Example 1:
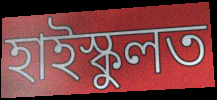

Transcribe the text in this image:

হাইস্কুলত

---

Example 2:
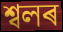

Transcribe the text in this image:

শ্বলৰ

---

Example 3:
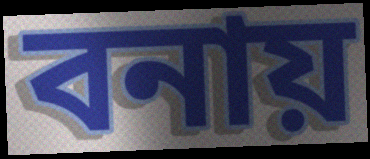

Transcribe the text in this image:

বনায়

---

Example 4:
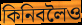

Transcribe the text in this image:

কিনিবলৈও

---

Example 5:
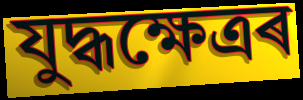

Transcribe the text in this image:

যুদ্ধক্ষেত্ৰৰ